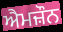
ਐਮਜ਼ੌਨ